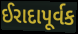
ઈરાદાપૂર્વક